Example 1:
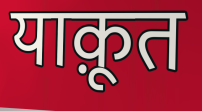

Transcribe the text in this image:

याक़ूत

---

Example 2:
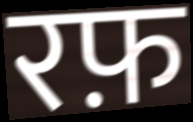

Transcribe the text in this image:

रफ़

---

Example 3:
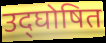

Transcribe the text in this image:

उद्घोषित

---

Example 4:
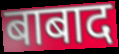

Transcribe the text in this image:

बाबाद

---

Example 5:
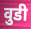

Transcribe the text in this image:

वुडी